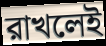
রাখলেই